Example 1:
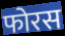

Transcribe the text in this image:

फोरस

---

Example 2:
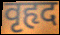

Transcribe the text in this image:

वृहृद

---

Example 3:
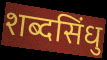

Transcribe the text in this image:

शब्दसिंधु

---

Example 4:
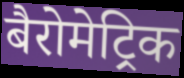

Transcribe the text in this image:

बैरोमेट्रिक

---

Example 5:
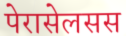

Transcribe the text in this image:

पेरासेलसस